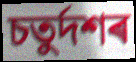
চতুৰ্দশৰ